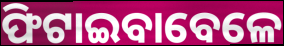
ଫିଟାଇବାବେଳେ